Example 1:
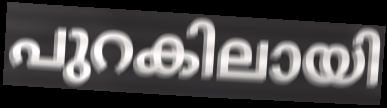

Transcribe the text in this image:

പുറകിലായി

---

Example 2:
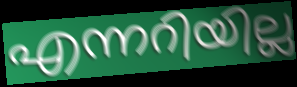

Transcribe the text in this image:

എന്നറിയില്ല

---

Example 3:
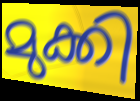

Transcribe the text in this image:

മുക്കി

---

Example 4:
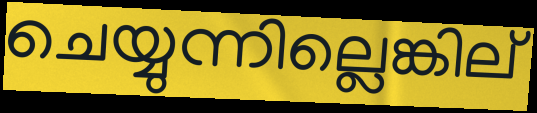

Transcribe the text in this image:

ചെയ്യുന്നില്ലെങ്കില്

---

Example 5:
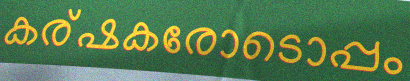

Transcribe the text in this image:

കര്ഷകരോടൊപ്പം